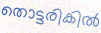
തൊട്ടരികിൽ